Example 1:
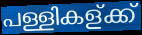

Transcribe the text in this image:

പള്ളികള്ക്ക്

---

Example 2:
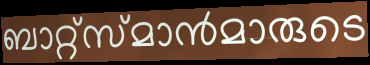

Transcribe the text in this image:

ബാറ്റ്സ്മാൻമാരുടെ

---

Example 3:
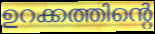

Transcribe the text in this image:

ഉറക്കത്തിന്റെ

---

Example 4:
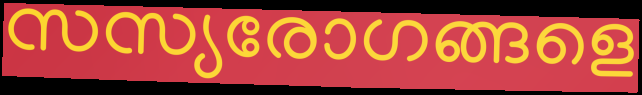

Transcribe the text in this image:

സസ്യരോഗങ്ങളെ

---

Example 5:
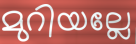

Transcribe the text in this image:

മുറിയല്ലേ